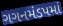
ગગનમંડપમાં